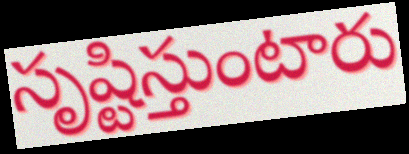
సృష్టిస్తుంటారు